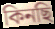
কিনছি